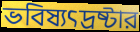
ভবিষ্যৎদ্রষ্টার